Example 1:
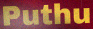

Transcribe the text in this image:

Puthu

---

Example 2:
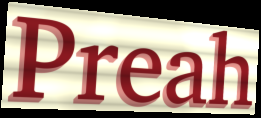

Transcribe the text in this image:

Preah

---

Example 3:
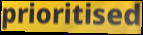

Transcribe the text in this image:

prioritised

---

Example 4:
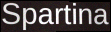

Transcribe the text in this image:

Spartina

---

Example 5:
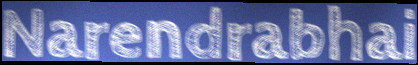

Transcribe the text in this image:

Narendrabhai